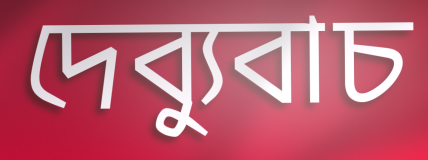
দেব্যুবাচ